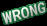
WRONG